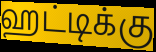
ஹட்டிக்கு